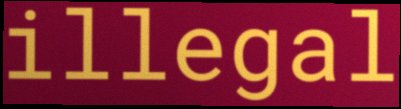
illegal